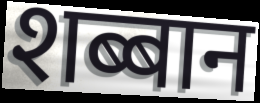
शब्बान